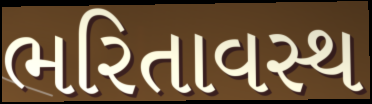
ભરિતાવસ્થ